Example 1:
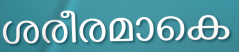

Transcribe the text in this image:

ശരീരമാകെ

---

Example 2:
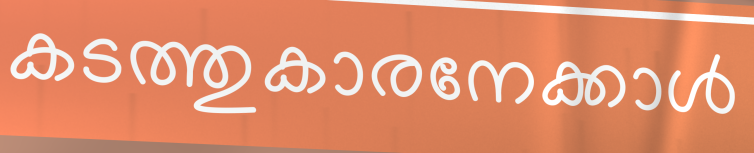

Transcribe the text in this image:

കടത്തുകാരനേക്കാൾ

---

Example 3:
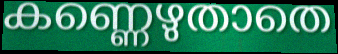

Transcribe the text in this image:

കണ്ണെഴുതാതെ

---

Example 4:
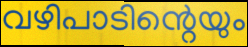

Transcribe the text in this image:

വഴിപാടിന്റെയും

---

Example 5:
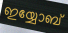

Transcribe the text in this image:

ഇയ്യോബ്